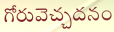
గోరువెచ్చదనం